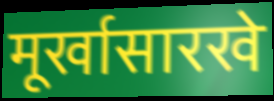
मूर्खासारखे